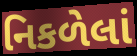
નિકળેલાં